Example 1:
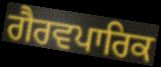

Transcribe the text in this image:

ਗੈਰਵਪਾਰਿਕ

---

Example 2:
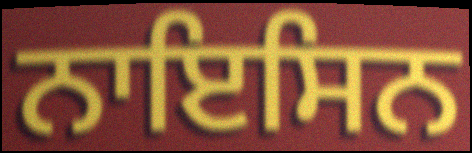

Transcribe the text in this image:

ਨਾਇਸਿਨ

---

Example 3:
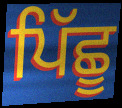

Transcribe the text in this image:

ਪਿੱਛੂ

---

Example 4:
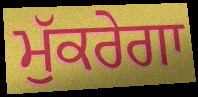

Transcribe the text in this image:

ਮੁੱਕਰੇਗਾ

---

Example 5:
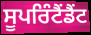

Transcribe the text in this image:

ਸੂਪਰਿੰਟੈਂਡੈਂਟ